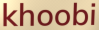
khoobi